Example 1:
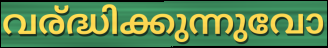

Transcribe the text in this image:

വര്ദ്ധിക്കുന്നുവോ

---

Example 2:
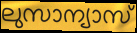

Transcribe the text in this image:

ലുസാന്യാസ്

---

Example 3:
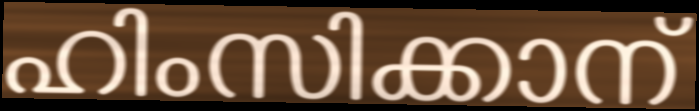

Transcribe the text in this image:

ഹിംസിക്കാന്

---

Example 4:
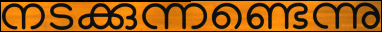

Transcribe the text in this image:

നടക്കുന്നണ്ടെന്നു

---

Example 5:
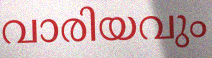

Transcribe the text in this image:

വാരിയവും